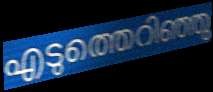
എടുത്തെറിഞ്ഞു